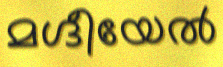
മഗ്ദീയേൽ